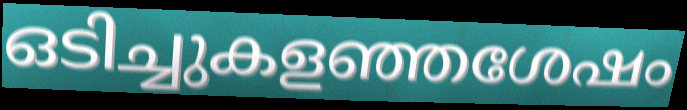
ഒടിച്ചുകളഞ്ഞശേഷം